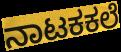
ನಾಟಕಕಲೆ